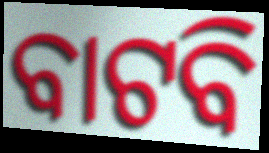
ବାଟବି